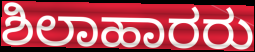
ಶಿಲಾಹಾರರು